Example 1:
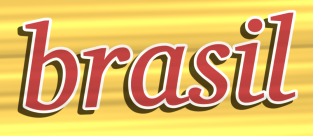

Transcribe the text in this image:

brasil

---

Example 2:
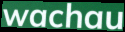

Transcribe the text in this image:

wachau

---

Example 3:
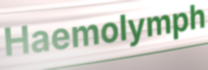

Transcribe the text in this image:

Haemolymph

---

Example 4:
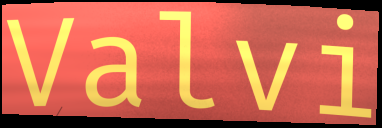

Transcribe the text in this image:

Valvi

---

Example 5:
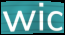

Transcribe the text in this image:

wic